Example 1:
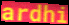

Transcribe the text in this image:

ardhi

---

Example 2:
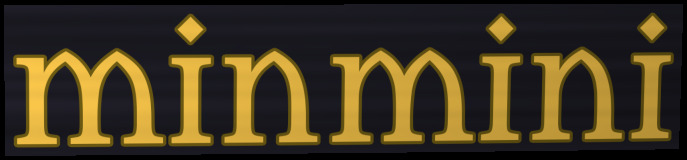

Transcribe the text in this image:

minmini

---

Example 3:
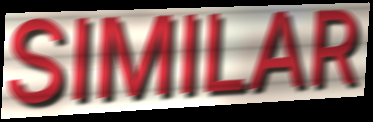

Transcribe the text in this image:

SIMILAR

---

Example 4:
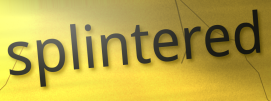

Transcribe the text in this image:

splintered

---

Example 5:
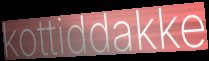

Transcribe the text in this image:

kottiddakke